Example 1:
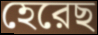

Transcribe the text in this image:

হেরেছ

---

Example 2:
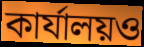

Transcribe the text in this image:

কার্যালয়ও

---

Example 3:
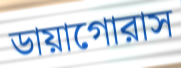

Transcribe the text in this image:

ডায়াগোরাস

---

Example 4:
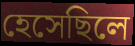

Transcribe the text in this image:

হেসেছিলে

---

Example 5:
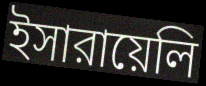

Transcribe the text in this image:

ইসারায়েলি